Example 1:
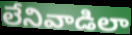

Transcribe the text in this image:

లేనివాడిలా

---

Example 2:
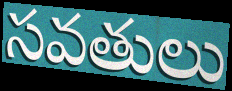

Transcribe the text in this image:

సవతులు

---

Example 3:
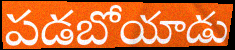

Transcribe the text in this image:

పడబోయాడు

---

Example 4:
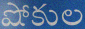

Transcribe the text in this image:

షోకుల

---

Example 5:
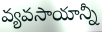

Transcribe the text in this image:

వ్యవసాయాన్నీ